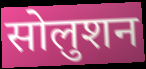
सोलुशन